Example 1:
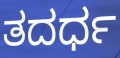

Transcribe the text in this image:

ತದರ್ಧ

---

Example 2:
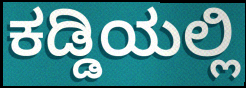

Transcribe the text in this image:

ಕಡ್ಡಿಯಲ್ಲಿ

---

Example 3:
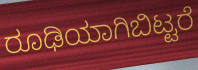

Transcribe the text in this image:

ರೂಢಿಯಾಗಿಬಿಟ್ಟರೆ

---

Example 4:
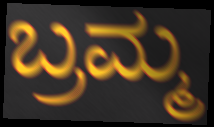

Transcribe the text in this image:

ಬ್ರಮ್ಮ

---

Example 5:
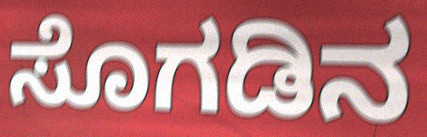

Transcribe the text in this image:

ಸೊಗಡಿನ